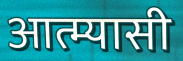
आत्म्यासी